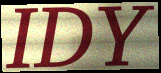
IDY